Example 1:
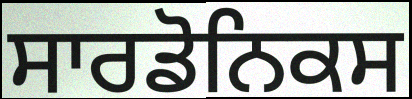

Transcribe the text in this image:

ਸਾਰਡੋਨਿਕਸ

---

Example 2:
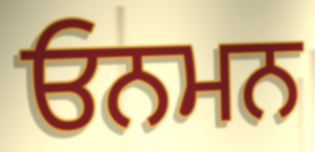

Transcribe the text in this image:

ਓਨਮਨ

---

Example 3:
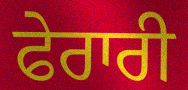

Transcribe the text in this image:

ਫੇਰਾਰੀ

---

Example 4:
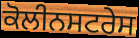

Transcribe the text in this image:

ਕੋਲੀਨਸਟਰੇਸ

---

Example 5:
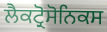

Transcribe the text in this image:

ਲੈਕਟ੍ਰੋਸੋਨਿਕਸ